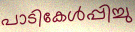
പാടികേൾപ്പിച്ചു